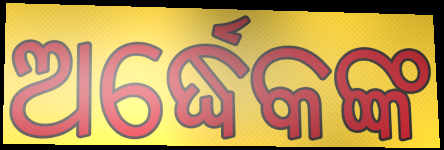
ଅର୍ଦ୍ଧେକଙ୍କ